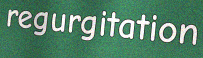
regurgitation